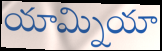
యామ్నియా